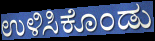
ಉಳಿಸಿಕೊಂಡು